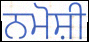
ਨਮੋਸ਼ੀ